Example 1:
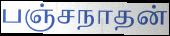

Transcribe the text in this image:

பஞ்சநாதன்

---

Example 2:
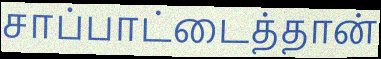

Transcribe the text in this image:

சாப்பாட்டைத்தான்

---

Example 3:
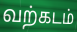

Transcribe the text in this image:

வற்கடம்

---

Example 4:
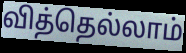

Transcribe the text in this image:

வித்தெல்லாம்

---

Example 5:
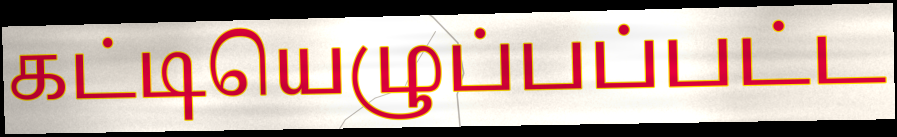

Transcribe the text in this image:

கட்டியெழுப்பப்பட்ட